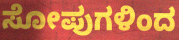
ಸೋಪುಗಳಿಂದ